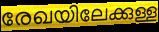
രേഖയിലേക്കുള്ള